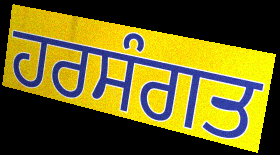
ਹਰਸੰਗਤ